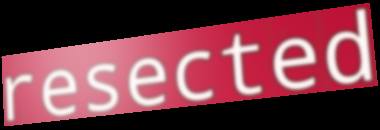
resected